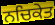
ਨਚਿਕੇਤ